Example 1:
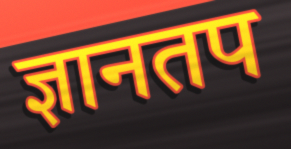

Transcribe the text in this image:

ज्ञानतप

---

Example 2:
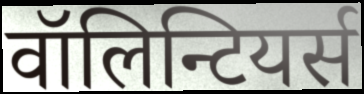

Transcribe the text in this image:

वॉलिन्टियर्स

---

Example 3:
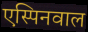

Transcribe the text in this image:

एस्पिनवाल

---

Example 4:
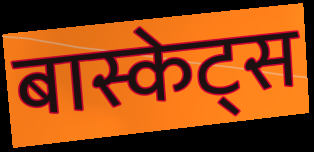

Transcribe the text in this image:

बास्केट्स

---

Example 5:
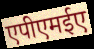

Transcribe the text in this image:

एपीएमईए